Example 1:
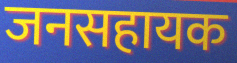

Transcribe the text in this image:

जनसहायक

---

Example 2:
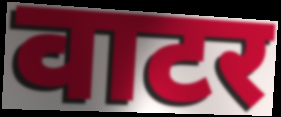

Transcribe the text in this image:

वाटर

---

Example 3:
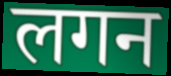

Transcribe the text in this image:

लगन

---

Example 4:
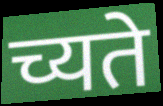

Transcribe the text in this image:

च्यते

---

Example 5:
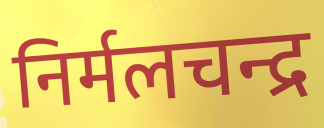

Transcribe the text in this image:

निर्मलचन्द्र